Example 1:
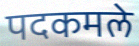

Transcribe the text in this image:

पदकमले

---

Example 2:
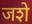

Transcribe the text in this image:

जशे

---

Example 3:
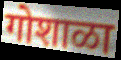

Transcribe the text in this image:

गोशाळा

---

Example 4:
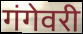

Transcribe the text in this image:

गंगेवरी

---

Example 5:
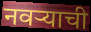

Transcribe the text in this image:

नवर्‍याची